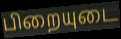
பிறையுடை